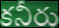
కనీరు